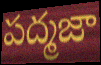
పద్మజా